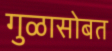
गुळासोबत